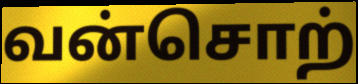
வன்சொற்